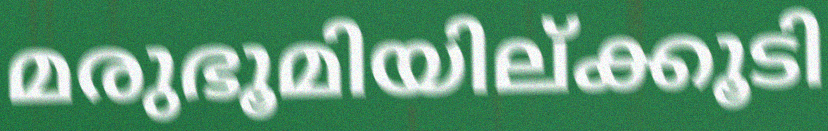
മരുഭൂമിയില്ക്കൂടി